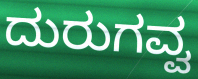
ದುರುಗವ್ವ